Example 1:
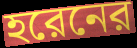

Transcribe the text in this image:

হরেনের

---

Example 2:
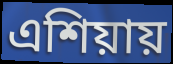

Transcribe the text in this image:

এশিয়ায়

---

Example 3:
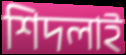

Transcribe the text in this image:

শিদলাই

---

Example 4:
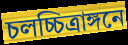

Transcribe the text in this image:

চলচ্চিত্রাঙ্গনে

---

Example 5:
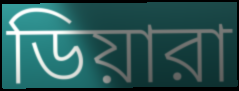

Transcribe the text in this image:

ডিয়ারা